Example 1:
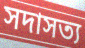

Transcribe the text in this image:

সদাসত্য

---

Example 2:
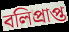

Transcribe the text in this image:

বলিপ্রাপ্ত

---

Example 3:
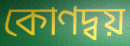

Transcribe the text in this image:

কোণদ্বয়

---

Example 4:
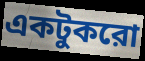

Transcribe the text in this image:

একটুকরো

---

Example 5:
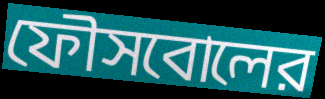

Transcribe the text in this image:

ফৌসবোলের